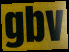
gbv